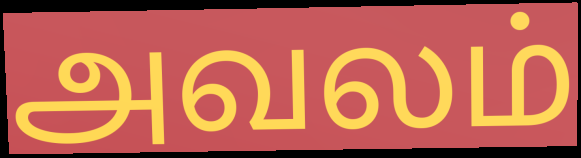
அவலம்